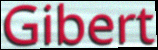
Gibert